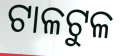
ଟାଳଟୁଳ